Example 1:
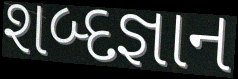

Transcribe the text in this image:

શબ્દજ્ઞાન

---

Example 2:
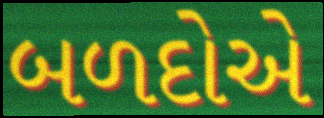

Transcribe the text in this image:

બળદોએ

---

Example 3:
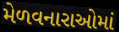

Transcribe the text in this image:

મેળવનારાઓમાં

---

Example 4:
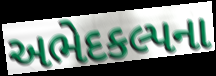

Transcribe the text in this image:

અભેદકલ્પના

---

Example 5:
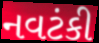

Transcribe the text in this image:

નવટંકી